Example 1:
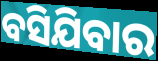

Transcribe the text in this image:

ବସିଯିବାର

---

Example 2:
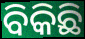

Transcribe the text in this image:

ବିକିଛି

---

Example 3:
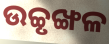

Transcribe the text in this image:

ଉଚ୍ଚୃଙ୍ଖଳ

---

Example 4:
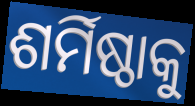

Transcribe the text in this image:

ଶର୍ମିଷ୍ଠାକୁ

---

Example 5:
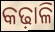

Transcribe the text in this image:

କଢ଼ାଳି